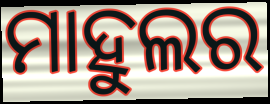
ମାହୁଲର